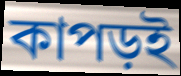
কাপড়ই